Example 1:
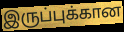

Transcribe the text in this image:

இருப்புக்கான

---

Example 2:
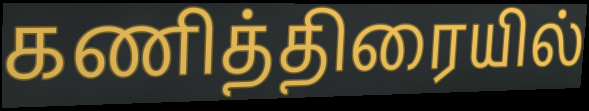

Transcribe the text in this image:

கணித்திரையில்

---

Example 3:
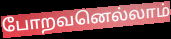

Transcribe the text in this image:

போறவனெல்லாம்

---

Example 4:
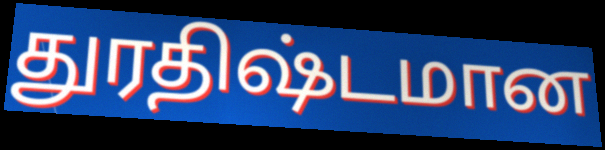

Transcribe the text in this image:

துரதிஷ்டமான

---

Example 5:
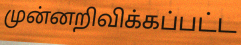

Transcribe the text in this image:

முன்னறிவிக்கப்பட்ட